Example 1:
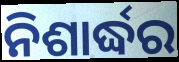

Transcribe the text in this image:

ନିଶାର୍ଦ୍ଧର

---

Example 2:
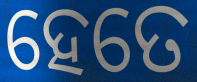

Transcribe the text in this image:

ହେତେ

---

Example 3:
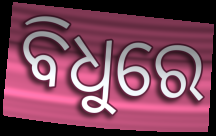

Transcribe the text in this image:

ବିଧୁରେ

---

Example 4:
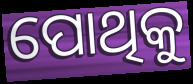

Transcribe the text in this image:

ପୋଥିକୁ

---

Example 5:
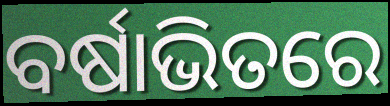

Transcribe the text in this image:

ବର୍ଷାଭିତରେ